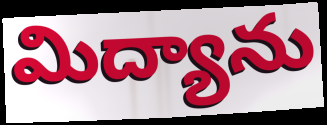
మిద్యాను